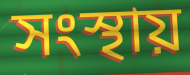
সংস্থায়